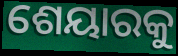
ଶେୟାରକୁ